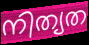
നിത്യത